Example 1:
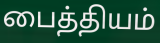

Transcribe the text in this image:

பைத்தியம்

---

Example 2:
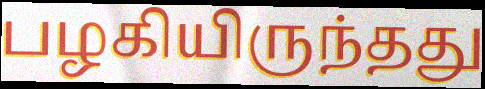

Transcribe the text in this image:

பழகியிருந்தது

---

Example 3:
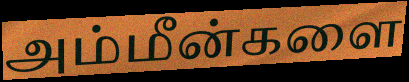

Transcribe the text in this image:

அம்மீன்களை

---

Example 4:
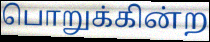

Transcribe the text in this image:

பொறுக்கின்ற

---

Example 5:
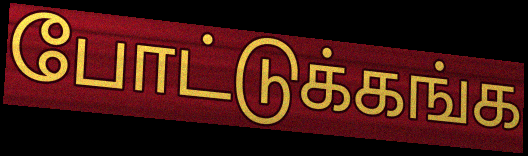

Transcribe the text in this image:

போட்டுக்கங்க